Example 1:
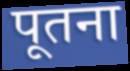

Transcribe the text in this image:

पूतना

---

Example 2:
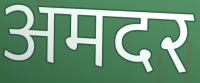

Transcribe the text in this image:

अमदर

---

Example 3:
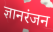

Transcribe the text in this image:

ज्ञानरंजन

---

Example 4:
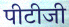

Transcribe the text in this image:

पीटीजी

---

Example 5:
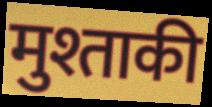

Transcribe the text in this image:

मुश्ताकी